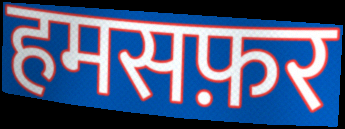
हमसफ़र